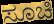
ಸೂಚಿ